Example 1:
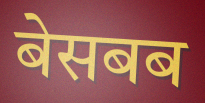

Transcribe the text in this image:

बेसबब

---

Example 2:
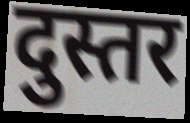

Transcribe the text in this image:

दुस्तर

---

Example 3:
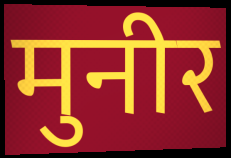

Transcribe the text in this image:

मुनीर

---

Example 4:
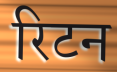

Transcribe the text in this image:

रिटन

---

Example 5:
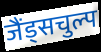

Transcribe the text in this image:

जैंड्सचुल्प